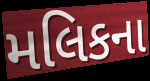
મલિકના